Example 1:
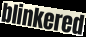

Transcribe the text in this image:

blinkered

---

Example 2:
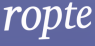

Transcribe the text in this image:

ropte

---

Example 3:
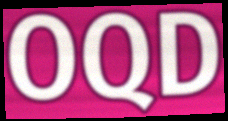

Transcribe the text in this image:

OQD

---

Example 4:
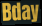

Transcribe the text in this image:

Bday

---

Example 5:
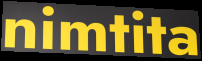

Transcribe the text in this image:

nimtita